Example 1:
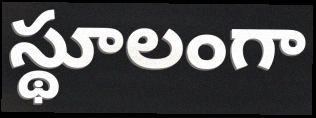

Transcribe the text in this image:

స్థూలంగా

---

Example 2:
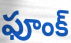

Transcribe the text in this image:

ఫూంక్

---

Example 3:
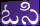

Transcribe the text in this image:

ఓసి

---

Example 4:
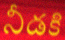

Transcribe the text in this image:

నీడకి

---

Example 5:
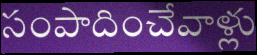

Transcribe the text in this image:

సంపాదించేవాళ్లు